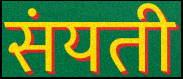
संयती